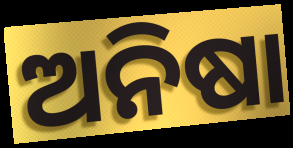
ଅନିଷା